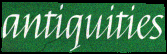
antiquities